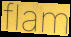
flam